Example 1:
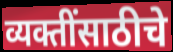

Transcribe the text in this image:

व्यक्तींसाठीचे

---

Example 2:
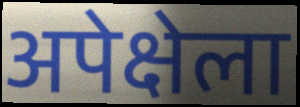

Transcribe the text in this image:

अपेक्षेला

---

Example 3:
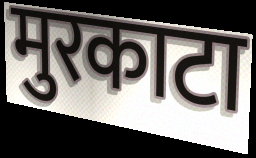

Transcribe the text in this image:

मुरकाटा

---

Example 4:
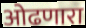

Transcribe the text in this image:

ओढणारा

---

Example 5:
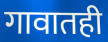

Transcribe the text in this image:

गावातही